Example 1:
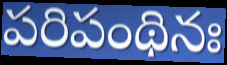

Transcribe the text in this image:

పరిపంథినః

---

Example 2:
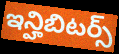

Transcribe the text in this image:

ఇన్హిబిటర్స్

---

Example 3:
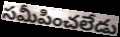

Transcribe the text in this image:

సమీపించలేడు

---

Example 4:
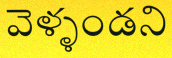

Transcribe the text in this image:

వెళ్ళండని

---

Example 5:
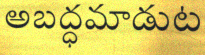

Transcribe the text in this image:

అబద్ధమాడుట